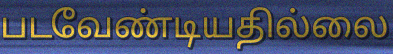
படவேண்டியதில்லை